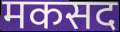
मकसद